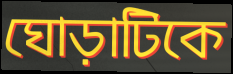
ঘোড়াটিকে